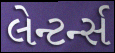
લેન્ટર્ન્સ